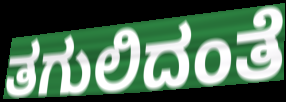
ತಗುಲಿದಂತೆ